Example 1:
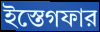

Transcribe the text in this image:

ইস্তেগফার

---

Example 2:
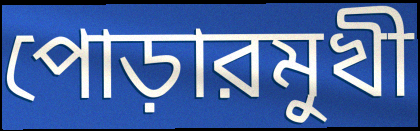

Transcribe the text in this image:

পোড়ারমুখী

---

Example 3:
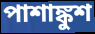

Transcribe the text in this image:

পাশাঙ্কুশ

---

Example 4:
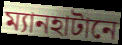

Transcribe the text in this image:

ম্যানহাটানে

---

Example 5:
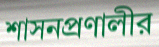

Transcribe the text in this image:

শাসনপ্রণালীর